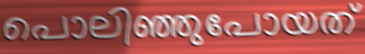
പൊലിഞ്ഞുപോയത്